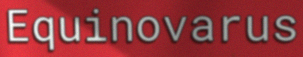
Equinovarus